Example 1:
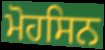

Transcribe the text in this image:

ਮੋਹਸਿਨ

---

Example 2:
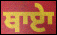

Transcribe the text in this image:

ਥਾਏਾ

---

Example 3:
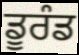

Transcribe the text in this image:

ਡੂਰੰਡ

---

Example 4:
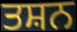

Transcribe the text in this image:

ਤਸ਼ਨ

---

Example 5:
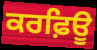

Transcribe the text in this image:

ਕਰਫ਼ਿਊ